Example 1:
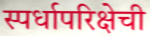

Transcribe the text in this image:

स्पर्धापरिक्षेची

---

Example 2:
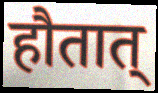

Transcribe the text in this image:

हौतात्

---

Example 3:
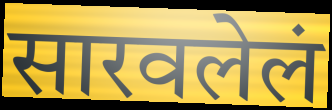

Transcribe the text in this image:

सारवलेलं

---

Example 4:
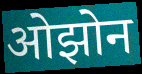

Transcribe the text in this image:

ओझोन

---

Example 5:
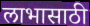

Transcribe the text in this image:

लाभासाठी